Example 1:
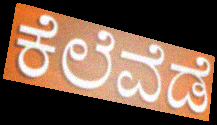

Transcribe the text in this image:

ಕೆಲೆವೆಡೆ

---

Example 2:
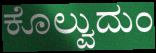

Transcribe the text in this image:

ಕೊಲ್ವುದುಂ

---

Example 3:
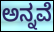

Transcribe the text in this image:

ಅನ್ನವೆ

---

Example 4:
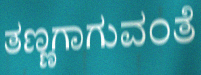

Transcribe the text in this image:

ತಣ್ಣಗಾಗುವಂತೆ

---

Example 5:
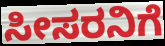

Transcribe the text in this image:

ಸೀಸರನಿಗೆ